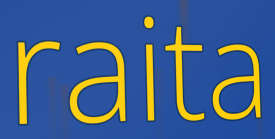
raita